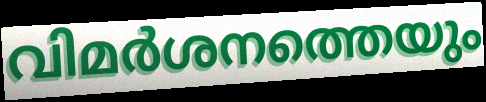
വിമർശനത്തെയും